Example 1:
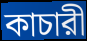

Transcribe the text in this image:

কাচারী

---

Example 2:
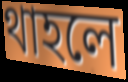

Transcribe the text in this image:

থাহলে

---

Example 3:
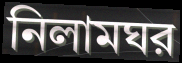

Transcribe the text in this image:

নিলামঘর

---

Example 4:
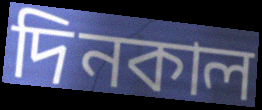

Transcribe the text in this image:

দিনকাল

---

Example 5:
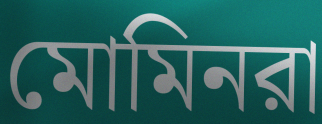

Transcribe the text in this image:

মোমিনরা